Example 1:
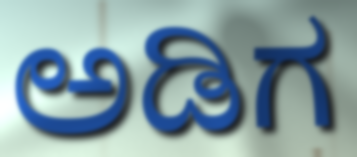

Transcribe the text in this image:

ಅಡಿಗ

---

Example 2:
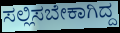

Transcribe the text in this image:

ಸಲ್ಲಿಸಬೇಕಾಗಿದ್ದ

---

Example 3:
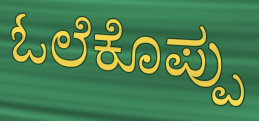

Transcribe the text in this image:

ಓಲೆಕೊಪ್ಪು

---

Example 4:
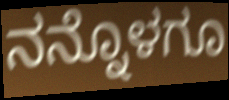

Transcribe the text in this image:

ನನ್ನೊಳಗೂ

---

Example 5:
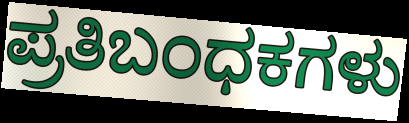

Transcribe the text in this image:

ಪ್ರತಿಬಂಧಕಗಳು